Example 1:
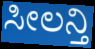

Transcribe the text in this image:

ಸೀಲನ್ತಿ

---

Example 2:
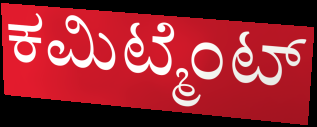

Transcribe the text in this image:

ಕಮಿಟ್ಮೆಂಟ್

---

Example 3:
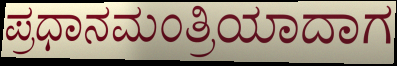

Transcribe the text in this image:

ಪ್ರಧಾನಮಂತ್ರಿಯಾದಾಗ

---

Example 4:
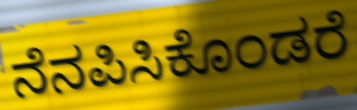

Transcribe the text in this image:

ನೆನಪಿಸಿಕೊಂಡರೆ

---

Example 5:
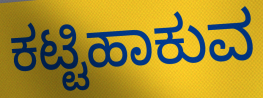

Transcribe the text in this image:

ಕಟ್ಟಿಹಾಕುವ